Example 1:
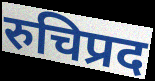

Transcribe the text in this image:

रुचिप्रद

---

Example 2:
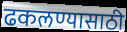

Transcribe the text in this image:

ढकलण्यासाठी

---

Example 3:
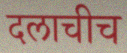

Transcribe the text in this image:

दलाचीच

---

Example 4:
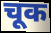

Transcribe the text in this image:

चूक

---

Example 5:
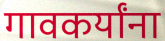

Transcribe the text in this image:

गावकर्यांना